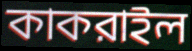
কাকরাইল